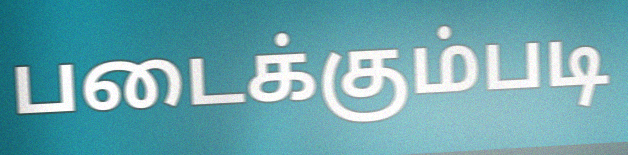
படைக்கும்படி